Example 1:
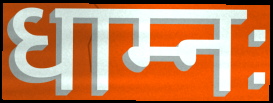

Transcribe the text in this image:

धाम्नः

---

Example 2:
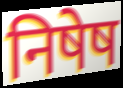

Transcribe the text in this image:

निषेष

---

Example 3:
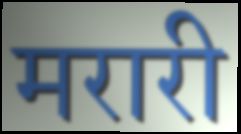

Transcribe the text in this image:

मरारी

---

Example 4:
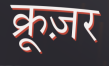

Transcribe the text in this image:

क्रूज़र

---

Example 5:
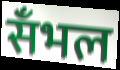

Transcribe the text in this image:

सँभल